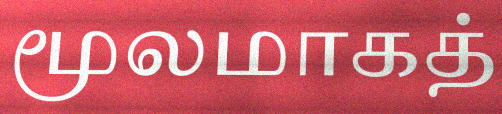
மூலமாகத்